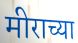
मीराच्या